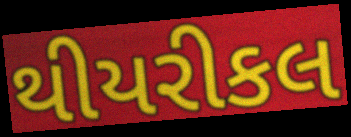
થીયરીકલ